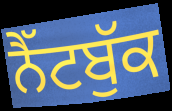
ਨੈੱਟਬੁੱਕ